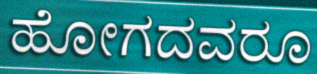
ಹೋಗದವರೂ